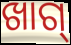
ଖାଗ୍